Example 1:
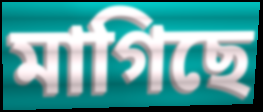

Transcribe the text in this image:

মাগিছে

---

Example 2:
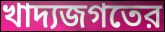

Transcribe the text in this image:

খাদ্যজগতের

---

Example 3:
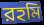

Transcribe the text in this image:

রহমি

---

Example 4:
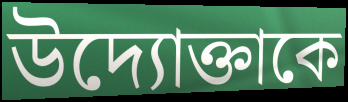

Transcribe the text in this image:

উদ্যোক্তাকে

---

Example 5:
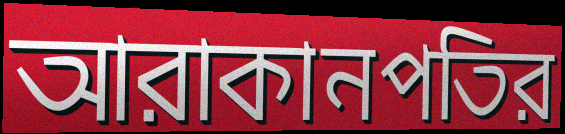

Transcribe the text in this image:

আরাকানপতির